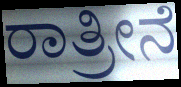
ರಾತ್ರೀನೆ